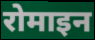
रोमाइन